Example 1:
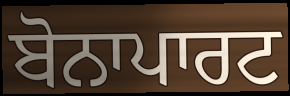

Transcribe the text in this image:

ਬੋਨਾਪਾਰਟ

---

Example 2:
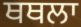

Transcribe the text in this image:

ਥਥਲਾ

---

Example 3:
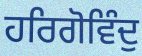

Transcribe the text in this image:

ਹਰਿਗੋਵਿੰਦੁ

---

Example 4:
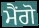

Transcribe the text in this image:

ਮੈਂਗੋ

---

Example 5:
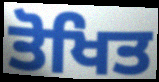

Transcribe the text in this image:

ਤੋਖਿਤ